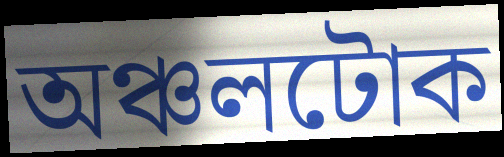
অঞ্চলটোক